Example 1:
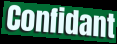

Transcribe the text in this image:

Confidant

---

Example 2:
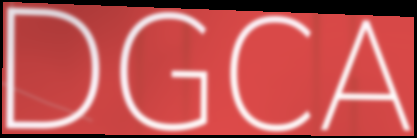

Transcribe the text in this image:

DGCA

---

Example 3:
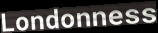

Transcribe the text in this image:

Londonness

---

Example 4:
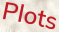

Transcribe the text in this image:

Plots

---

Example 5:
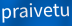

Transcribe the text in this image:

praivetu